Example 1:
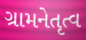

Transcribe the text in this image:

ગ્રામનેતૃત્વ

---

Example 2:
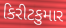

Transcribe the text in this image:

કિરીટકુમાર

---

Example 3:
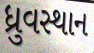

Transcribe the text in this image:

ધ્રુવસ્થાન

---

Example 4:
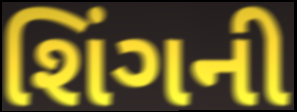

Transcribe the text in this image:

શિંગની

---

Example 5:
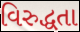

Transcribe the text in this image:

વિરુદ્ધતા